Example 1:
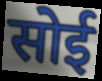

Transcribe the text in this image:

सोई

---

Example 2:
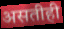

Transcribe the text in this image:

असतीही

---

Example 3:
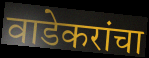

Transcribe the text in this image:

वाडेकरांचा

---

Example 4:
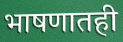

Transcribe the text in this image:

भाषणातही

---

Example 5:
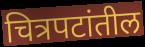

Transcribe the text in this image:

चित्रपटांतील